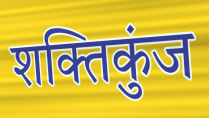
शक्तिकुंज